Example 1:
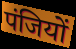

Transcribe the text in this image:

पंजियों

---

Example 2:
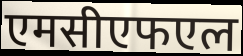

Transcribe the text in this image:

एमसीएफएल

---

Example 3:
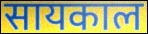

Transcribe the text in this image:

सायकाल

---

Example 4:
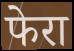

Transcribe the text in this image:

फेरा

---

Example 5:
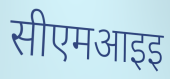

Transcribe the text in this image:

सीएमआइइ